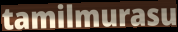
tamilmurasu